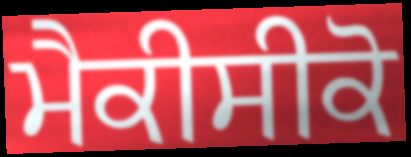
ਮੈਕੀਸੀਕੋ